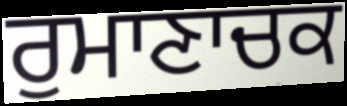
ਰੁਮਾਣਾਚਕ